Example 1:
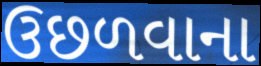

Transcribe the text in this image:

ઉછળવાના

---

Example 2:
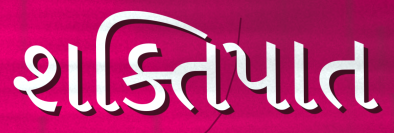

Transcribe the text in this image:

શક્તિપાત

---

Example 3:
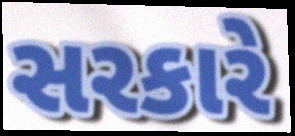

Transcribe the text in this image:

સરકારે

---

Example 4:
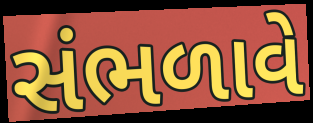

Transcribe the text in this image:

સંભળાવે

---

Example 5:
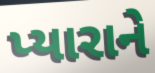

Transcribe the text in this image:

પ્યારાને